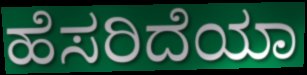
ಹೆಸರಿದೆಯಾ